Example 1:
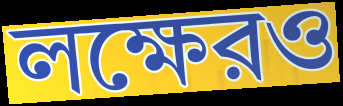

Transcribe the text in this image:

লক্ষেরও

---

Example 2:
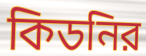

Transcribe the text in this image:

কিডনির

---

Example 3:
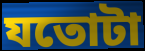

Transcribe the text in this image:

যতোটা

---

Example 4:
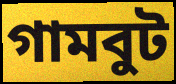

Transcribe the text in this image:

গামবুট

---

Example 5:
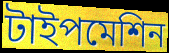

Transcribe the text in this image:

টাইপমেশিন